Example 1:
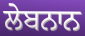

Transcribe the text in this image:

ਲੇਬਨਾਨ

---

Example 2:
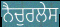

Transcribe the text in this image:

ਨੈਚੁਰਲੇਸ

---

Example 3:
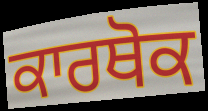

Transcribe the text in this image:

ਕਾਰਥੋਕ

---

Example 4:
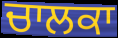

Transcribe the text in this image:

ਚਾਲਕਾ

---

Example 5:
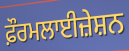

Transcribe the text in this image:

ਫ਼ੌਰਮਲਾਈਜ਼ੇਸ਼ਨ